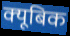
क्यूबिक